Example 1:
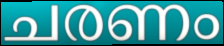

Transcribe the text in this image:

ചരണം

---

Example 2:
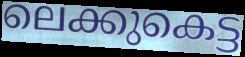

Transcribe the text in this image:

ലെക്കുകെട്ട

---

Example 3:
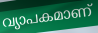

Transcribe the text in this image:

വ്യാപകമാണ്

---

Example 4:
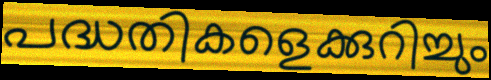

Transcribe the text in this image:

പദ്ധതികളെക്കുറിച്ചും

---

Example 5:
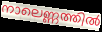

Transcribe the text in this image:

നാലെണ്ണത്തിൽ